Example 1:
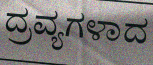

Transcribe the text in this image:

ದ್ರವ್ಯಗಳಾದ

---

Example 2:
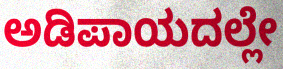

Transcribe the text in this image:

ಅಡಿಪಾಯದಲ್ಲೇ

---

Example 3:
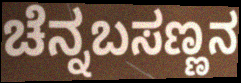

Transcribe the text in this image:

ಚೆನ್ನಬಸಣ್ಣನ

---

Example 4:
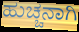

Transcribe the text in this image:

ಹುಚ್ಚನಾಗಿ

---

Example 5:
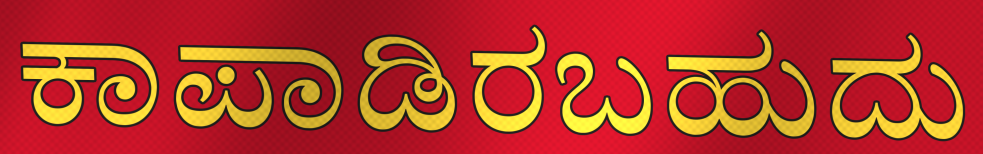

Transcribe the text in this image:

ಕಾಪಾಡಿರಬಹುದು